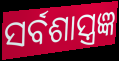
ସର୍ବଶାସ୍ତ୍ରଜ୍ଞ